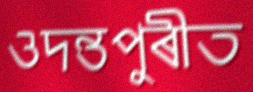
ওদন্তপুৰীত